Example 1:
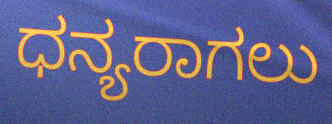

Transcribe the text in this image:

ಧನ್ಯರಾಗಲು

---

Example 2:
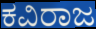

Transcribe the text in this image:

ಕವಿರಾಜ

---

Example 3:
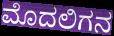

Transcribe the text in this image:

ಮೊದಲಿಗನ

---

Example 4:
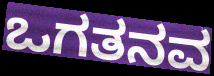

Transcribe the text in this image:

ಒಗತನವ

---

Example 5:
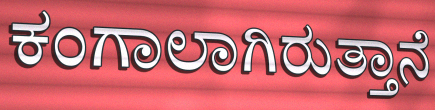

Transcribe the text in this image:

ಕಂಗಾಲಾಗಿರುತ್ತಾನೆ